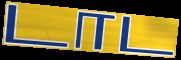
டாட